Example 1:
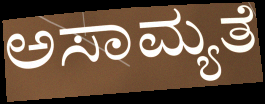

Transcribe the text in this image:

ಅಸಾಮ್ಯತೆ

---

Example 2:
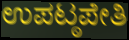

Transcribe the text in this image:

ಉಪಟ್ಠಪೇತಿ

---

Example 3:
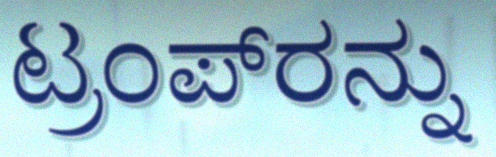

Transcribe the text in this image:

ಟ್ರಂಪ್‌ರನ್ನು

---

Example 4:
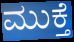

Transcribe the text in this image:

ಮುಕ್ತೆ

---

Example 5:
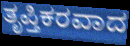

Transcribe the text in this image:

ತೃಪ್ತಿಕರವಾದ